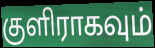
குளிராகவும்